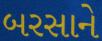
બરસાને